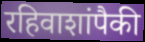
रहिवाशांपैकी